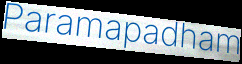
Paramapadham